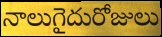
నాలుగైదురోజులు